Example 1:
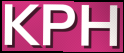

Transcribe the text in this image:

KPH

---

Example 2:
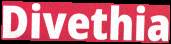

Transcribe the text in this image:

Divethia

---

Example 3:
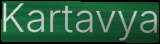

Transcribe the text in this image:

Kartavya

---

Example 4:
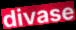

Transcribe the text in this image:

divase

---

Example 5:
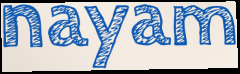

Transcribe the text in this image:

nayam